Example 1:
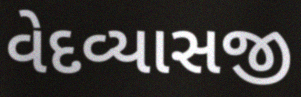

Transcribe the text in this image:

વેદવ્યાસજી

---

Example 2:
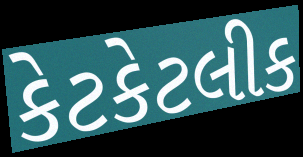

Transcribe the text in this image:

કેટકેટલીક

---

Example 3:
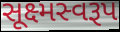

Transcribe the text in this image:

સૂક્ષ્મસ્વરૂપ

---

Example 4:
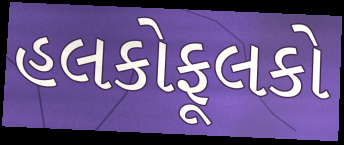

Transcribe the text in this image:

હલકોફૂલકો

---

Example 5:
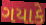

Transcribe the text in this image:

ગયાકે